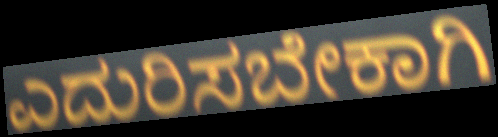
ಎದುರಿಸಬೇಕಾಗಿ